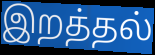
இறத்தல்